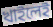
খাইলেই